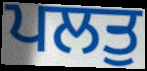
ਪਲਤੁ